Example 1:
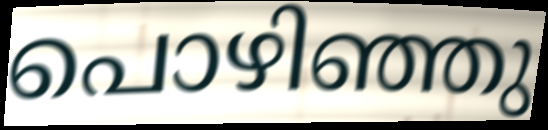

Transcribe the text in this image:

പൊഴിഞ്ഞു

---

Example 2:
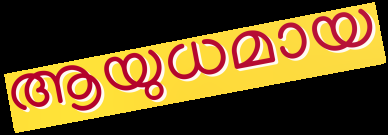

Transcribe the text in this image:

ആയുധമായ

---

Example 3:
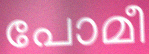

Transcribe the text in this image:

പോമീ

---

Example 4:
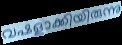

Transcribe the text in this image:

വഷളാക്കിയിരുന്നു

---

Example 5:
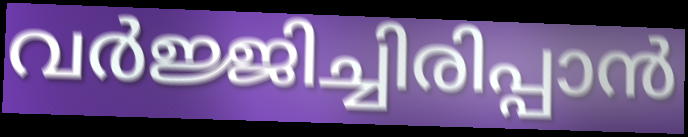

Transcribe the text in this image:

വർജ്ജിച്ചിരിപ്പാൻ